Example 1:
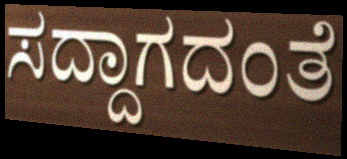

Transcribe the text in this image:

ಸದ್ದಾಗದಂತೆ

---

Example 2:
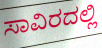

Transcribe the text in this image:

ಸಾವಿರದಲ್ಲಿ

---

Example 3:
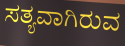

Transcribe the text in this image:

ಸತ್ಯವಾಗಿರುವ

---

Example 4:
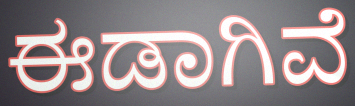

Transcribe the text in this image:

ಈಡಾಗಿವೆ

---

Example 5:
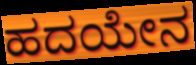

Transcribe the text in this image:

ಹದಯೇನ